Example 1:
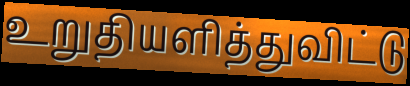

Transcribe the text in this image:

உறுதியளித்துவிட்டு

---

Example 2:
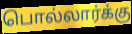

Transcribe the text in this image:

பொல்லார்க்கு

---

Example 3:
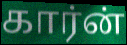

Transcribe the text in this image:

கார்ன்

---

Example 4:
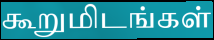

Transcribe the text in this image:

கூறுமிடங்கள்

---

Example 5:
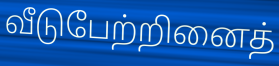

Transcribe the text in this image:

வீடுபேற்றினைத்